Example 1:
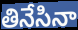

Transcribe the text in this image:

తినేసినా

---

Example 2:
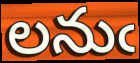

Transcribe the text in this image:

లనుఁ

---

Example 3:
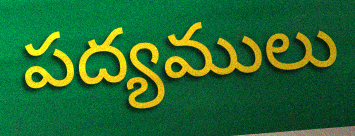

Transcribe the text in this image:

పద్యములు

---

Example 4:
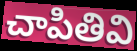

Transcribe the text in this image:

చాపితివి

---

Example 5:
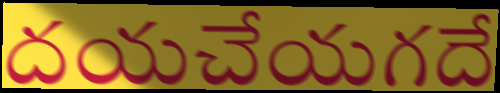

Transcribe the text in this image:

దయచేయగదే